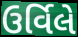
ઉર્વિલે